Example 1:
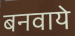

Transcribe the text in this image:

बनवाये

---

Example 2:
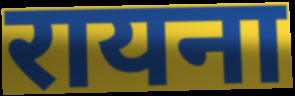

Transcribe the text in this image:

रायना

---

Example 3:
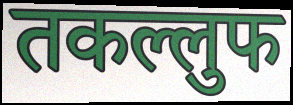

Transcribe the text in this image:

तकल्लुफ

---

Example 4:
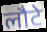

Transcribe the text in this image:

लौटे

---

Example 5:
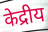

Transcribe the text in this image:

केद्रीय